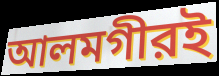
আলমগীরই